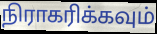
நிராகரிக்கவும்